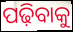
ପଢ଼ିବାକୁ